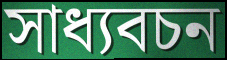
সাধ্যবচন